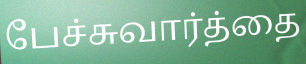
பேச்சுவார்த்தை